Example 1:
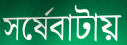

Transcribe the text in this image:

সর্ষেবাটায়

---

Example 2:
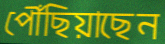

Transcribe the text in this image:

পৌঁছিয়াছেন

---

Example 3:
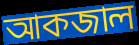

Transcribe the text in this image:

আকজাল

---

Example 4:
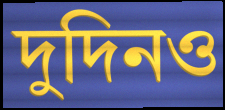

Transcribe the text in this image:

দুদিনও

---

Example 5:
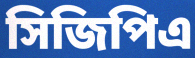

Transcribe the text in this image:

সিজিপিএ